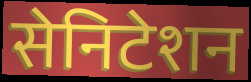
सेनिटेशन